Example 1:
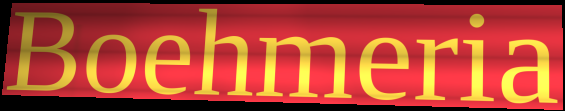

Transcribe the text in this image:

Boehmeria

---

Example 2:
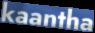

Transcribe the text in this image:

kaantha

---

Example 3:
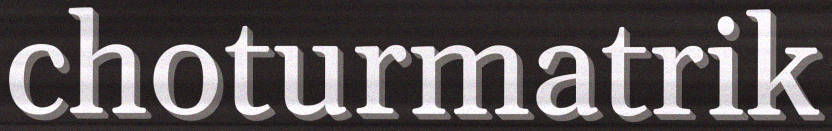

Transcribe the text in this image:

choturmatrik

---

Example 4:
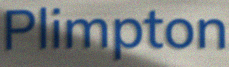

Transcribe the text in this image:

Plimpton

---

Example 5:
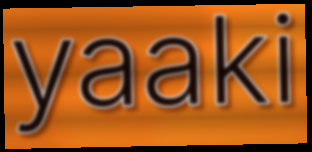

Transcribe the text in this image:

yaaki